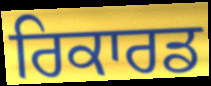
ਰਿਕਾਰਡ